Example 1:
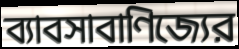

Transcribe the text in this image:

ব্যাবসাবাণিজ্যের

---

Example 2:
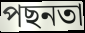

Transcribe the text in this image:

পছনতা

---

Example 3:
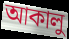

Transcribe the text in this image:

আকালু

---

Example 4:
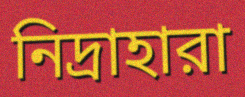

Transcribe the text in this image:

নিদ্রাহারা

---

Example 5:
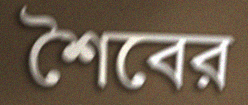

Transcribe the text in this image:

শৈবের